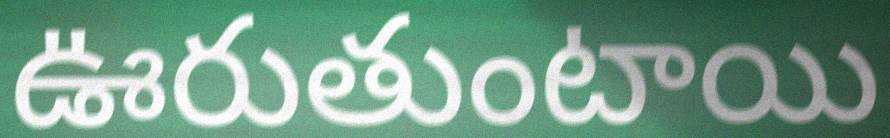
ఊరుతుంటాయి